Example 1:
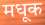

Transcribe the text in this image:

मधूक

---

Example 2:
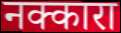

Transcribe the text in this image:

नक्कारा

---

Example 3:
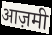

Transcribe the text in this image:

आज़मी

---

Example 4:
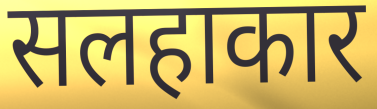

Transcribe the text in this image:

सलहाकार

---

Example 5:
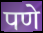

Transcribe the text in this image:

पणे